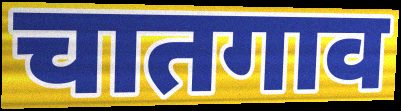
चातगाव